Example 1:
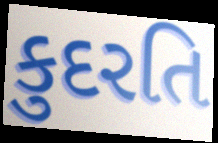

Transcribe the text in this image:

કુદરતિ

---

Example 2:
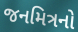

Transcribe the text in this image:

જનમિત્રનો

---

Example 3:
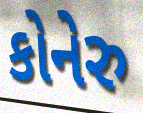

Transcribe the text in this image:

કોનેરુ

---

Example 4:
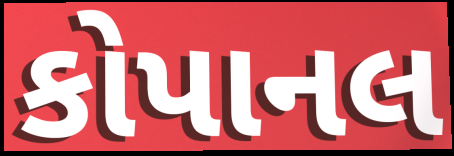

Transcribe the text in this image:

કોપાનલ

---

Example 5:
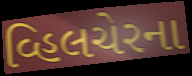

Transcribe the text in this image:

વ્હિલચેરના